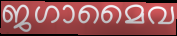
ജഗാമൈവ